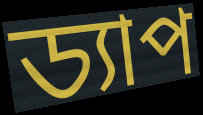
ড্যাপ